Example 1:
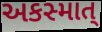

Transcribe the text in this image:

અકસ્માત્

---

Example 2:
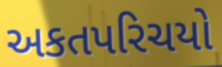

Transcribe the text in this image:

અકતપરિચયો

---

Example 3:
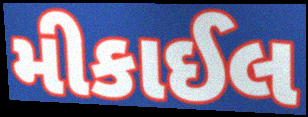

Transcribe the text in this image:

મીકાઈલ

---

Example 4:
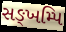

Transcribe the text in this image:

સઙ્ખમ્પિ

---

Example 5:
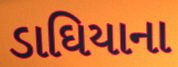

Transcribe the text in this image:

ડાઘિયાના